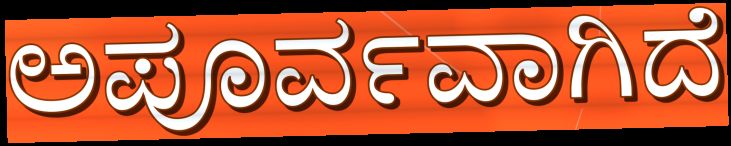
ಅಪೂರ್ವವಾಗಿದೆ